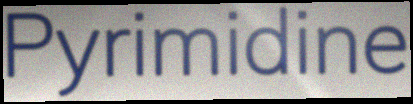
Pyrimidine